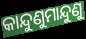
କାନ୍ଦୁଣୁମାନ୍ଦୁଣୁ